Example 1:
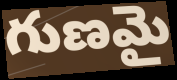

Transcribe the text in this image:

గుణమై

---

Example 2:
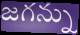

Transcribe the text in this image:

జగన్ను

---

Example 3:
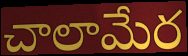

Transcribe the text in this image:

చాలామేర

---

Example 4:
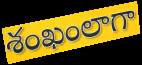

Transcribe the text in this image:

శంఖంలాగా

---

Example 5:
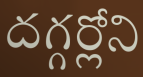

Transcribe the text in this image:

దగ్గర్లోని